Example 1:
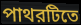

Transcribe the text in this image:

পাথরটিতে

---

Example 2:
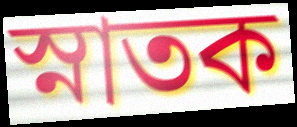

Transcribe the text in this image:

স্নাতক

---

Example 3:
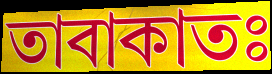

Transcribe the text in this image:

তাবাকাতঃ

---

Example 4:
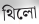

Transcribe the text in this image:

থিলো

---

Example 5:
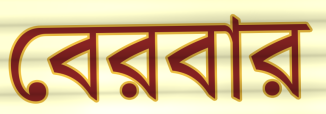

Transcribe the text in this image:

বেরবার